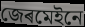
জেৰমেইনে